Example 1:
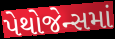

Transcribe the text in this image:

પેથોજેન્સમાં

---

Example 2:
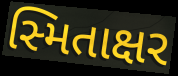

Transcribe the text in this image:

સ્મિતાક્ષર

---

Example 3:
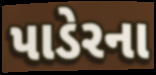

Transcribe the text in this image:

પાડેરના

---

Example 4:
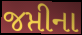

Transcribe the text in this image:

જપ્તીના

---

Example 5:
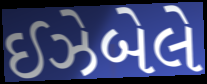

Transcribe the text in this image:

ઈઝેબેલે